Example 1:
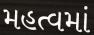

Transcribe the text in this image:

મહત્વમાં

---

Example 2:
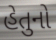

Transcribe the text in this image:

હેતુનો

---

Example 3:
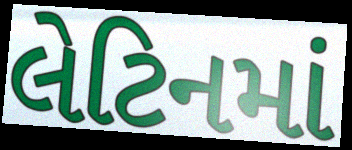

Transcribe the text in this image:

લેટિનમાં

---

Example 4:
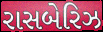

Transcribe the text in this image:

રાસબેરિઝ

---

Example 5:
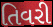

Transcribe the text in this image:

તિવરી